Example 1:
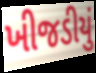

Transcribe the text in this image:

ખીજડીયું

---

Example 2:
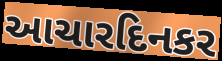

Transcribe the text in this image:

આચારદિનકર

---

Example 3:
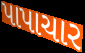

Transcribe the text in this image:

પાપાચાર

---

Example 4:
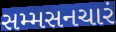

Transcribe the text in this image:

સમ્મસનચારં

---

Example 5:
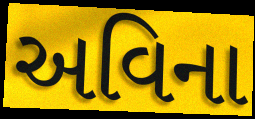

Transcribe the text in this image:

અવિના